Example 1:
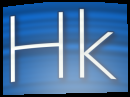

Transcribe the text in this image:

Hk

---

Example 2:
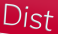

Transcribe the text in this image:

Dist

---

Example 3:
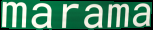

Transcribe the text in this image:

marama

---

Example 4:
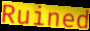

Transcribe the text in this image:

Ruined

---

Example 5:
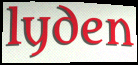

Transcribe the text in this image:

lyden